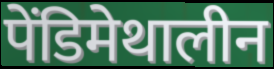
पेंडिमेथालीन